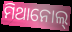
ମିଥାନୋଲ୍